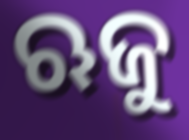
ଋଜୁ